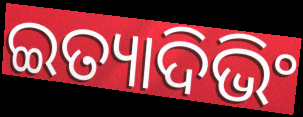
ଇତ୍ୟାଦିଭିଂ